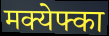
मक्येफ्का